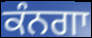
ਕੰਨਗਾ